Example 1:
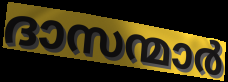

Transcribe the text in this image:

ദാസന്മാർ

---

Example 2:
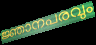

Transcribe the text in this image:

ജ്ഞാനപരവും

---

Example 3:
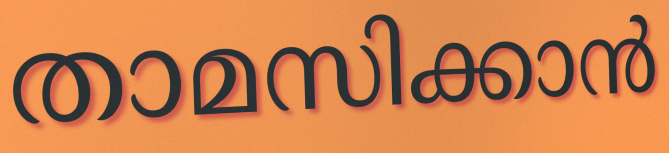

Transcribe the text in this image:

താമസിക്കാൻ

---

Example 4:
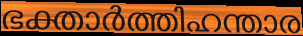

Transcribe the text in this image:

ഭക്താർത്തിഹന്താര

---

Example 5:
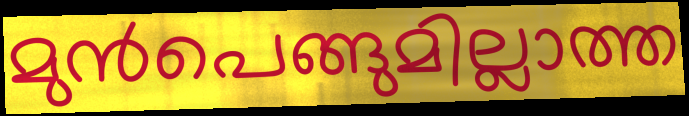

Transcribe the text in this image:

മുൻപെങ്ങുമില്ലാത്ത